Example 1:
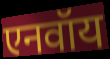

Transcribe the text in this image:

एनवॉय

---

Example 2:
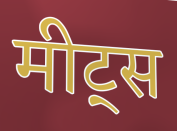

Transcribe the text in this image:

मीट्स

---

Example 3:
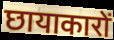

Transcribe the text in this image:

छायाकारों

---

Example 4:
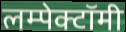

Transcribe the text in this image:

लम्पेक्टॉमी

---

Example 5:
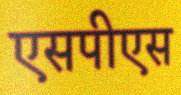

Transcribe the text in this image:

एसपीएस